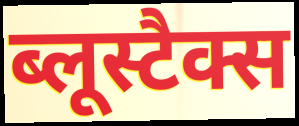
ब्लूस्टैक्स